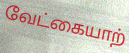
வேட்கையாற்